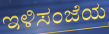
ಇಳಿಸಂಜೆಯ